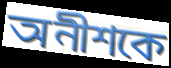
অনীশকে